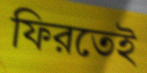
ফিরতেই